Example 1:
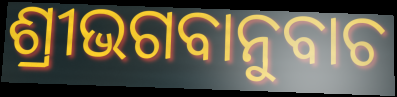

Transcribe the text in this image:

ଶ୍ରୀଭଗବାନୁବାଚ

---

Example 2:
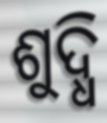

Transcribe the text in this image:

ଶୁଦ୍ଧି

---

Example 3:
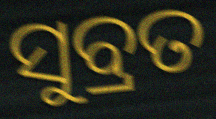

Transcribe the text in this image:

ସୁବ୍ରତ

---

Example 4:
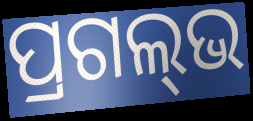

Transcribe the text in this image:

ପ୍ରଗଲ୍‌ଭ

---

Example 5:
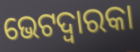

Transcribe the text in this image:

ଭେଟଦ୍ୱାରକା